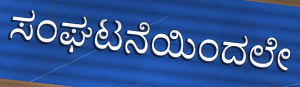
ಸಂಘಟನೆಯಿಂದಲೇ